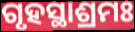
ଗୃହସ୍ଥାଶ୍ରମଃ